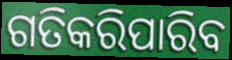
ଗତିକରିପାରିବ